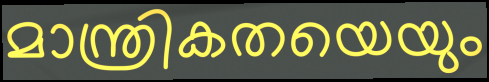
മാന്ത്രികതയെയും